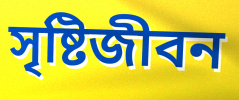
সৃষ্টিজীবন